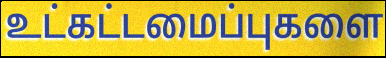
உட்கட்டமைப்புகளை